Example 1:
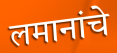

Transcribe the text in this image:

लमानांचे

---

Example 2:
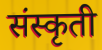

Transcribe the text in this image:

संस्कृती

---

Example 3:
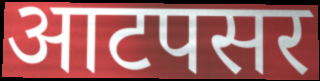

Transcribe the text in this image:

आटपसर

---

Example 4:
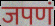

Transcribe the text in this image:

जपणं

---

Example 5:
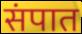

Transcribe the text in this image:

संपात